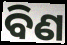
ବିଣ